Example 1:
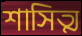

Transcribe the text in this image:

শাসিত্ম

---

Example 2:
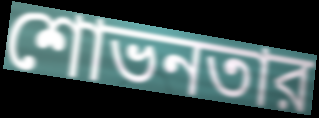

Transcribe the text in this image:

শোভনতার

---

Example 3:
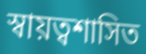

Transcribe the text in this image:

স্বায়ত্বশাসিত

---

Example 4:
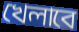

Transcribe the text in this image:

খেলাবে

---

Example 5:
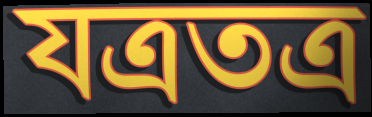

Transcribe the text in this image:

যত্রতত্র